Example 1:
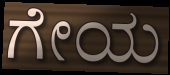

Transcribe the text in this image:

ಗೇಯ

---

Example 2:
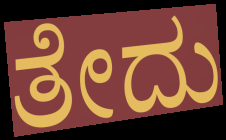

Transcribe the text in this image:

ತೇದು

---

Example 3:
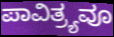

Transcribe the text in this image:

ಪಾವಿತ್ರ್ಯವೂ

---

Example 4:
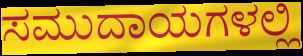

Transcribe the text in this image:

ಸಮುದಾಯಗಳಲ್ಲಿ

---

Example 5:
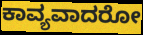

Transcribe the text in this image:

ಕಾವ್ಯವಾದರೋ